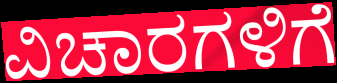
ವಿಚಾರಗಳಿಗೆ